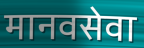
मानवसेवा